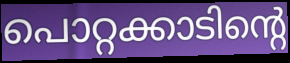
പൊറ്റക്കാടിന്റെ